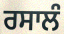
ਰਸਾਲੰ